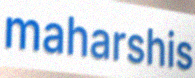
maharshis